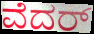
ವೆದರ್